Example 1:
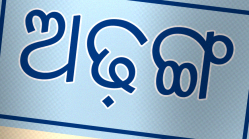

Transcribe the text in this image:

ଅଢ଼ଙ୍ଗ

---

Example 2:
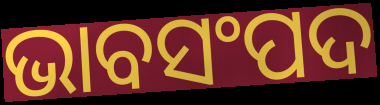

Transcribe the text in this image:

ଭାବସଂପଦ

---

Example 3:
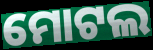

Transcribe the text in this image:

ମୋଟଲ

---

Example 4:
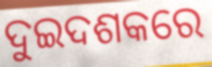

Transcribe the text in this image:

ଦୁଇଦଶକରେ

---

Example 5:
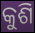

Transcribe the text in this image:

କୁଶି